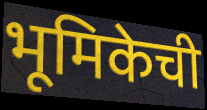
भूमिकेची